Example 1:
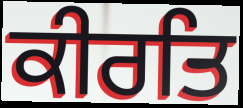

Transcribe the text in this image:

ਕੀਰਤਿ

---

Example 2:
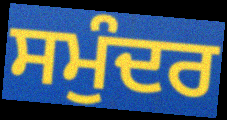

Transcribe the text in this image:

ਸਮੁੰਦਰ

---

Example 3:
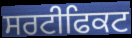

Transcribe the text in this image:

ਸਰਟੀਫਿਕਟ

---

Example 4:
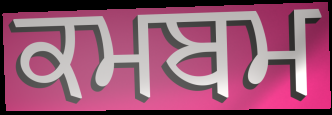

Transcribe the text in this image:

ਕਮਬਮ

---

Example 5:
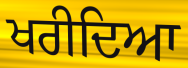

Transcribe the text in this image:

ਖਰੀਦਿਆ